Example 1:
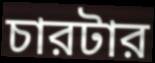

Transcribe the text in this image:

চারটার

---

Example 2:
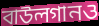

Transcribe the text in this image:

বাউলগানও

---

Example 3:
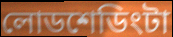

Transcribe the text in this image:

লোডশেডিংটা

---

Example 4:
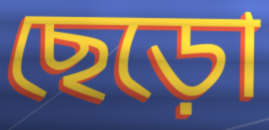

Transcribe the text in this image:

ছেড়ো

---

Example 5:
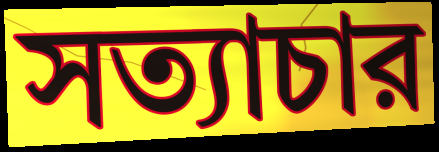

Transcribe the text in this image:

সত্যাচার